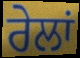
ਰੇਲਾਂ